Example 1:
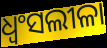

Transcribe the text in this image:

ଧ୍ବଂସଲୀଳା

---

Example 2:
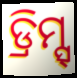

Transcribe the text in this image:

ଡ୍ରିମ୍ସ୍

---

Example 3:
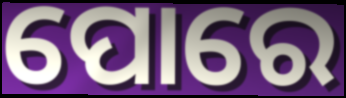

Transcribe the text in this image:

ପୋରେ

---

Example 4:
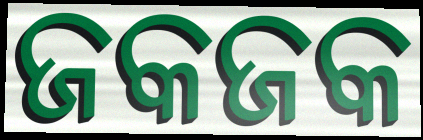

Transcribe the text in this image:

ଜକଜକ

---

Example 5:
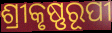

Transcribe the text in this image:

ଶ୍ରୀକୃଷ୍ଣରୂପୀ